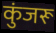
कुंजरू